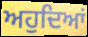
ਅਹੁਦਿਆਂ